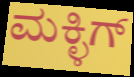
ಮಕ್ಳಿಗ್